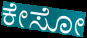
ಕೇಸೋ